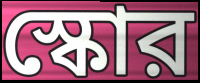
স্কোর